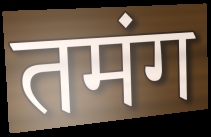
तमंग